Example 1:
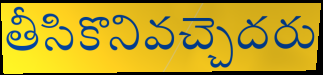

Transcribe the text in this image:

తీసికొనివచ్చెదరు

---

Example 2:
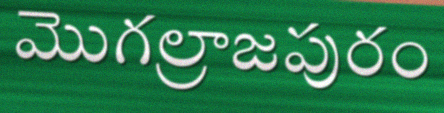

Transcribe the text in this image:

మొగల్రాజపురం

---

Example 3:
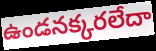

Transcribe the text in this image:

ఉండనక్కరలేదా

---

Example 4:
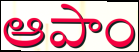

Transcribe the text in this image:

ఆపాం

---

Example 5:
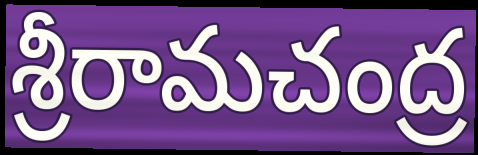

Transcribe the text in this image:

శ్రీరామచంద్ర